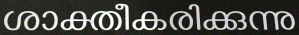
ശാക്തീകരിക്കുന്നു